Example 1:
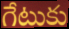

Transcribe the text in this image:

గేటుకు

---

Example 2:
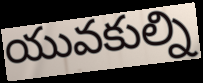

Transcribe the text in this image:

యువకుల్ని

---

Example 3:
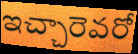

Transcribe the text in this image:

ఇచ్చారెవరో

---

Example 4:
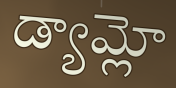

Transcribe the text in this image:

డ్యామ్లో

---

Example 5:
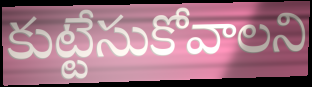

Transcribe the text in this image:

కుట్టేసుకోవాలని